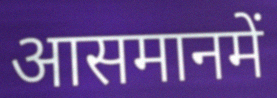
आसमानमें